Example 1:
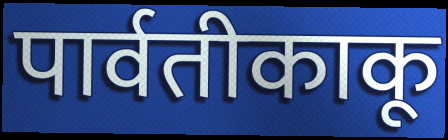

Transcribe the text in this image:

पार्वतीकाकू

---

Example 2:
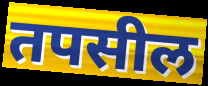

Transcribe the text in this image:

तपसील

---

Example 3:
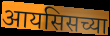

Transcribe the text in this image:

आयसिसच्या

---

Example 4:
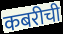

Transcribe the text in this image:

कबरीची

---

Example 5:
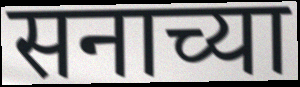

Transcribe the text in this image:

सनाच्या